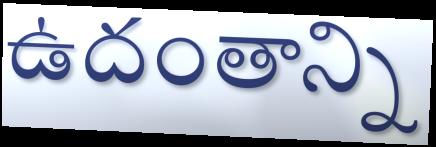
ఉదంతాన్ని